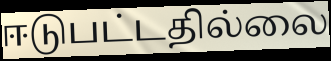
ஈடுபட்டதில்லை